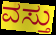
ವಸ್ತು